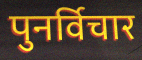
पुनर्विचार